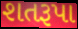
શતરૂપા